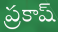
ప్రకాష్